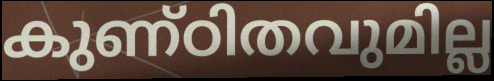
കുണ്ഠിതവുമില്ല